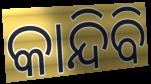
କାନ୍ଦିବି